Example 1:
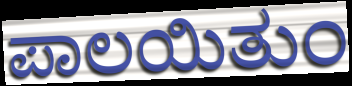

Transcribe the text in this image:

ಪಾಲಯಿತುಂ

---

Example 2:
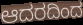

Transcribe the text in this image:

ಆದರದಿಂದ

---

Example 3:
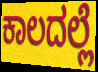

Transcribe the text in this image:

ಕಾಲದಲ್ಲೆ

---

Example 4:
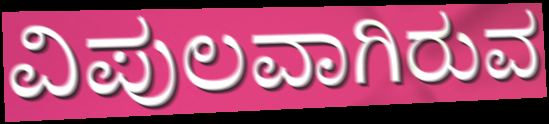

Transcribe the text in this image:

ವಿಪುಲವಾಗಿರುವ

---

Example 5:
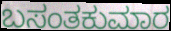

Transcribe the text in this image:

ಬಸಂತಕುಮಾರ